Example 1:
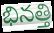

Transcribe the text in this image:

భినత్తి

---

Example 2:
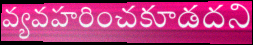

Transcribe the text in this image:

వ్యవహరించకూడదని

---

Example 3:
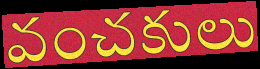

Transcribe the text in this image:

వంచకులు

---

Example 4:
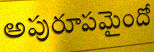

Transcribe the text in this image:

అపురూపమైందో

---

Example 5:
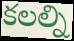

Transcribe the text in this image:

కలల్ని